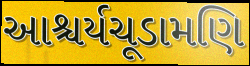
આશ્ચર્યચૂડામણિ